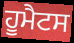
ਹੂਮੈਟਸ